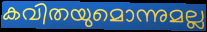
കവിതയുമൊന്നുമല്ല